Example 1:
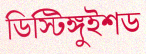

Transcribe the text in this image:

ডিস্টিঙ্গুইশড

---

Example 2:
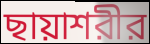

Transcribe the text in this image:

ছায়াশরীর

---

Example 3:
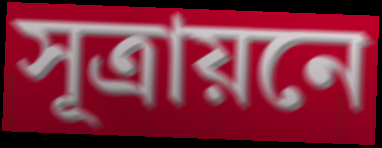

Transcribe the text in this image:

সূত্রায়নে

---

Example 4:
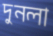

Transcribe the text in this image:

দুনলা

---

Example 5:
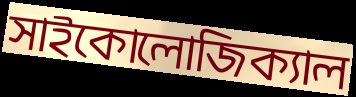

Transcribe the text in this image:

সাইকোলোজিক্যাল